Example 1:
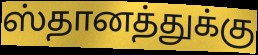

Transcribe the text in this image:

ஸ்தானத்துக்கு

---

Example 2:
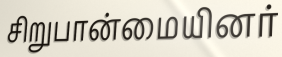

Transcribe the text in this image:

சிறுபான்மையினர்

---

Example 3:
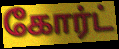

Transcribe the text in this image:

கோர்ட்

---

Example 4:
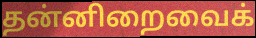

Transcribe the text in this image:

தன்னிறைவைக்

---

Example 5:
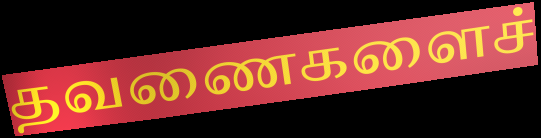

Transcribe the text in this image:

தவணைகளைச்